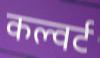
कल्वर्ट